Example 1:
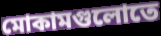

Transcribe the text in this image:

মোকামগুলোতে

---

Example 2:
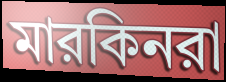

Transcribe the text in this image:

মারকিনরা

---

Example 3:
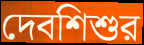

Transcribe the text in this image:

দেবশিশুর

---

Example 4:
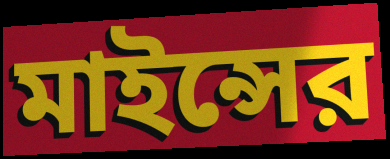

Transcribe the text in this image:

মাইন্সের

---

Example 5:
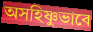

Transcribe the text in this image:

অসহিষ্ণুভাবে